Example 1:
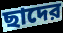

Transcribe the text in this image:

ছাদের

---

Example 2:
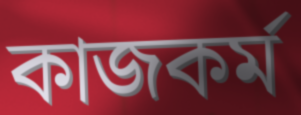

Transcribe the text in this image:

কাজকর্ম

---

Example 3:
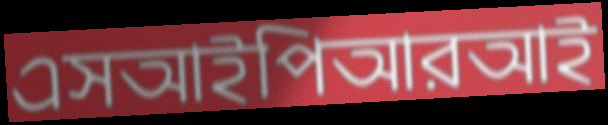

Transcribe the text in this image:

এসআইপিআরআই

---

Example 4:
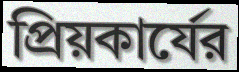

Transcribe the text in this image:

প্রিয়কার্যের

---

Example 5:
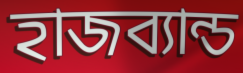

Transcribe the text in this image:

হাজব্যান্ড